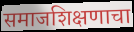
समाजशिक्षणाचा